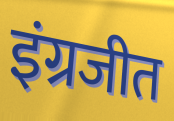
इंग्रजीत